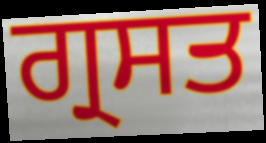
ਗ੍ਰਸਤ